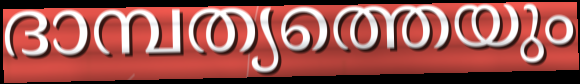
ദാമ്പത്യത്തെയും